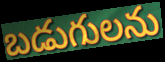
బడుగులను